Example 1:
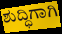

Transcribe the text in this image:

ಶುದ್ಧಿಗಾಗಿ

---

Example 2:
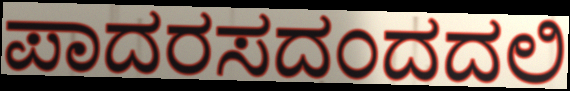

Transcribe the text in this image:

ಪಾದರಸದಂದದಲಿ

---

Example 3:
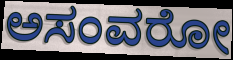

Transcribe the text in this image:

ಅಸಂವರೋ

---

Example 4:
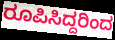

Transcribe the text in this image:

ರೂಪಿಸಿದ್ದರಿಂದ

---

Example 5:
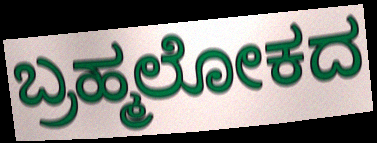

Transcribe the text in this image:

ಬ್ರಹ್ಮಲೋಕದ